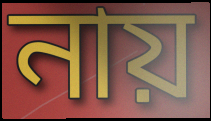
নায়